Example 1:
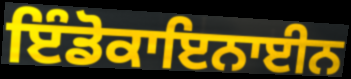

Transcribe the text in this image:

ਇੰਡੋਕਾਇਨਾਈਨ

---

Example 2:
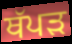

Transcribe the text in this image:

ਥੱਪੜ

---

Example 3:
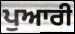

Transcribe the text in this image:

ਪੁਆਰੀ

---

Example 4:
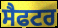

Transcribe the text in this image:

ਸੈਫਟਰ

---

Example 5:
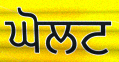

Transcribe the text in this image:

ਘੋਲਟ